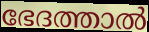
ഭേദത്താൽ